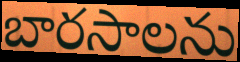
బారసాలను